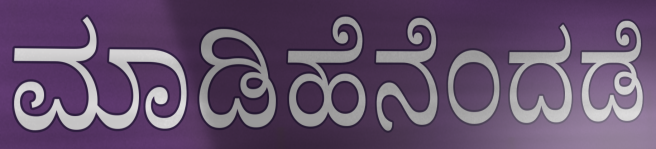
ಮಾಡಿಹೆನೆಂದಡೆ